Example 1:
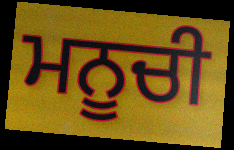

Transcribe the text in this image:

ਮਨੂਚੀ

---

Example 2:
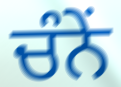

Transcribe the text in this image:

ਚੰਨੇਂ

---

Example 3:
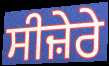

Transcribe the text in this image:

ਸੀਜ਼ੇਰੇ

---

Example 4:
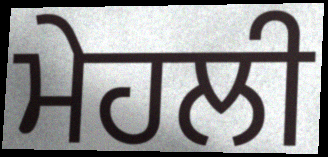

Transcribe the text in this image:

ਮੇਹਲੀ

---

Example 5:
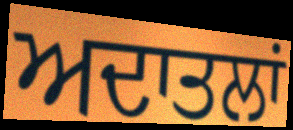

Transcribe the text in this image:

ਅਦਾਤਲਾਂ